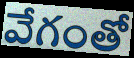
వేగంతో